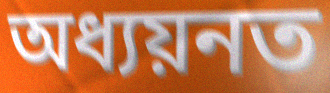
অধ্যয়নত